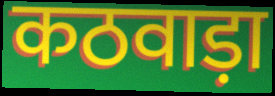
कठवाड़ा